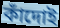
কাঁদোই